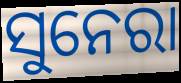
ସୁନେରା